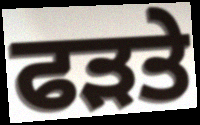
ਫੜਤੇ